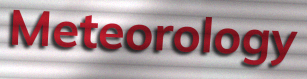
Meteorology